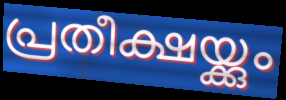
പ്രതീക്ഷയ്ക്കും